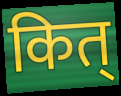
कित्